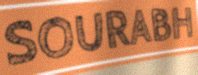
SOURABH